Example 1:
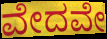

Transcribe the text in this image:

ವೇದವೇ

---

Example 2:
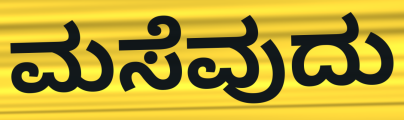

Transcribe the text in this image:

ಮಸೆವುದು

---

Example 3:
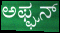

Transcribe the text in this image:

ಅಫ್ಘನ್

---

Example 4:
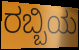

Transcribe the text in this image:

ರಬ್ಬಿಯ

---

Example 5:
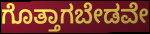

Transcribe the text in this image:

ಗೊತ್ತಾಗಬೇಡವೇ